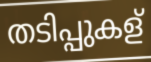
തടിപ്പുകള്